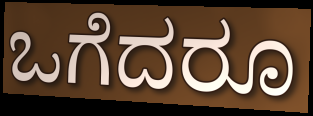
ಒಗೆದರೂ